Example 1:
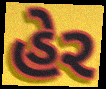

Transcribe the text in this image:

હેર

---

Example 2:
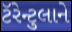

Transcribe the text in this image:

ટૅરેન્ટુલાને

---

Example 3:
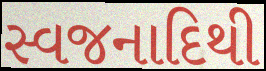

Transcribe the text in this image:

સ્વજનાદિથી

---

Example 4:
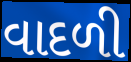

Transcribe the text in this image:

વાદળી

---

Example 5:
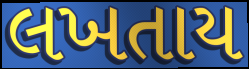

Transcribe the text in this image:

લખતાય